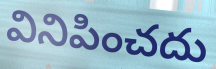
వినిపించదు